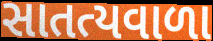
સાતત્યવાળા